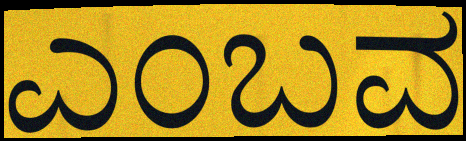
ಎಂಬವ